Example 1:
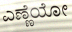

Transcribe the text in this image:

ಎಣ್ಣೆಯೋ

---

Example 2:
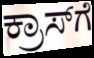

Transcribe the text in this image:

ಕ್ರಾಸ್‌ಗೆ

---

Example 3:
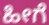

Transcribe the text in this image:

ಹೀಗೆ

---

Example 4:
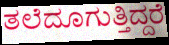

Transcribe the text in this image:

ತಲೆದೂಗುತ್ತಿದ್ದರೆ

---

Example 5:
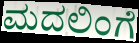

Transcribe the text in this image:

ಮದಲಿಂಗೆ